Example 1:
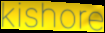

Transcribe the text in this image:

kishore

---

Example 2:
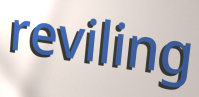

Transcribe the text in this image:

reviling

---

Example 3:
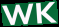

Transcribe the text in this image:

WK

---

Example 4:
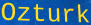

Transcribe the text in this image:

Ozturk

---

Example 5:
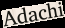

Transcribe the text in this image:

Adachi